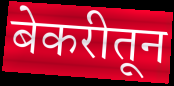
बेकरीतून